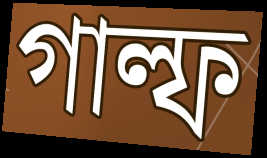
গাল্ফ